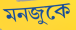
মনজুকে